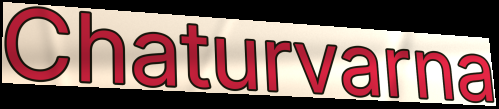
Chaturvarna